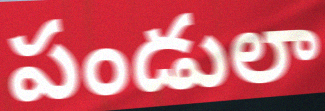
పండులా